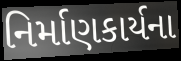
નિર્માણકાર્યના